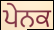
ਪੇਨਕ